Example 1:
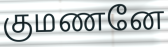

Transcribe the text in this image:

குமணனே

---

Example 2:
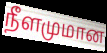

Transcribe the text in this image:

நீளமுமான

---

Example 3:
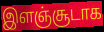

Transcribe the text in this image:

இளஞ்சூடாக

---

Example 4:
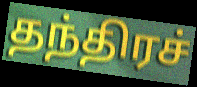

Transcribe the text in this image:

தந்திரச்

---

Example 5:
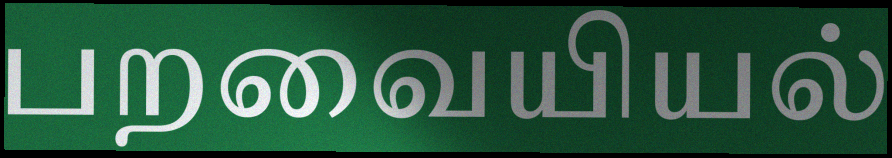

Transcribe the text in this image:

பறவையியல்